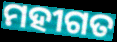
ମହୀଗତ